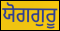
ਯੋਗਗੁਰੂ